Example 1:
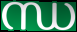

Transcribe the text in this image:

ന്ധ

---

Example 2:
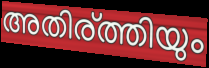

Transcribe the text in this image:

അതിര്ത്തിയും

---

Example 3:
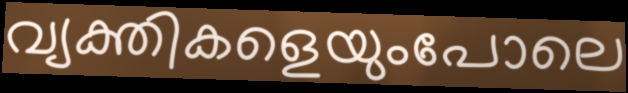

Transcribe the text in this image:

വ്യക്തികളെയുംപോലെ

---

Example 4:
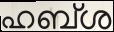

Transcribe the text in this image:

ഹബ്ശ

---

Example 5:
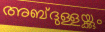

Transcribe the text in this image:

അബ്ദുള്ളയ്ക്കും